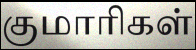
குமாரிகள்